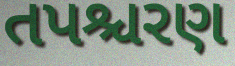
તપશ્ચરણ